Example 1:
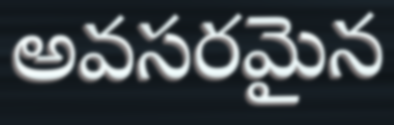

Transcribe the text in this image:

అవసరమైన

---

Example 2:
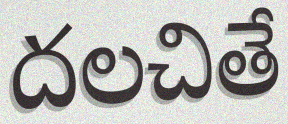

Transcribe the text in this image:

దలచితే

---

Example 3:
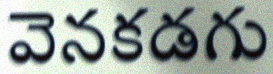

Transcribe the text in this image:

వెనకడగు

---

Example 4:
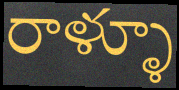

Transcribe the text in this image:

రాళ్ళూ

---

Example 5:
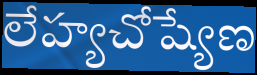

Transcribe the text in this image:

లేహ్యచోష్యేణ